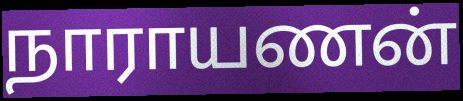
நாராயணன்